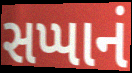
સપ્પાનં